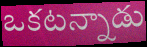
ఒకటన్నాడు